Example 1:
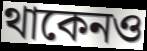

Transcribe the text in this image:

থাকেনও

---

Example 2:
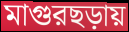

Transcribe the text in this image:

মাগুরছড়ায়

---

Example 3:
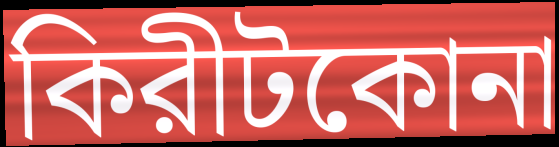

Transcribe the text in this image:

কিরীটকোনা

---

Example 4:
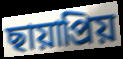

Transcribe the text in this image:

ছায়াপ্রিয়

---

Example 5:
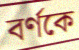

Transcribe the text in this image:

বর্ণকে